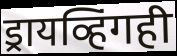
ड्रायव्हिंगही